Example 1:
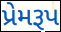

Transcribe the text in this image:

પ્રેમરૂપ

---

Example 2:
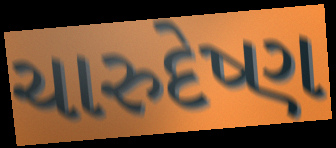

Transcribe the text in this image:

ચારુદેષ્ણ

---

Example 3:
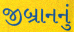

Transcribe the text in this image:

જીબ્રાનનું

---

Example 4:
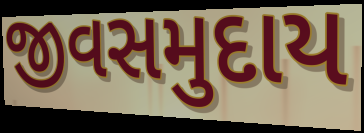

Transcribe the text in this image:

જીવસમુદાય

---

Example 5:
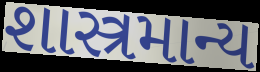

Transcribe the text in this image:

શાસ્ત્રમાન્ય